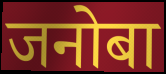
जनोबा